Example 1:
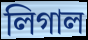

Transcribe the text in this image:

লিগাল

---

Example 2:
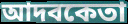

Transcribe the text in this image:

আদবকেতা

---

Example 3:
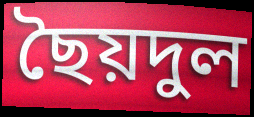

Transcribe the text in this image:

ছৈয়দুল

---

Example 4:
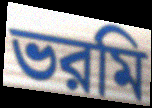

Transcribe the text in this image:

ভরমি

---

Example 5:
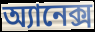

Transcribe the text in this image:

অ্যানেক্স